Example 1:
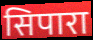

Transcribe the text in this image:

सिपारा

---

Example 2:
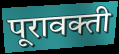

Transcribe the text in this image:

पूरावक्ती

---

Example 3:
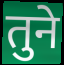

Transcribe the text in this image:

तुने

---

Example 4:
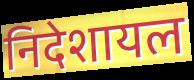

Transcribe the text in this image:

निदेशायल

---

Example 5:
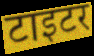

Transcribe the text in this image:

टाइटर